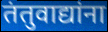
तंतुवाद्यांना